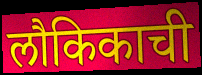
लौकिकाची